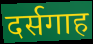
दर्सगाह